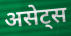
असेट्स